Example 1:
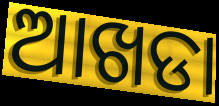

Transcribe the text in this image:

ଆଖଡା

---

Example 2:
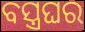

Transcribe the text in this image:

ବସ୍ତ୍ରଘର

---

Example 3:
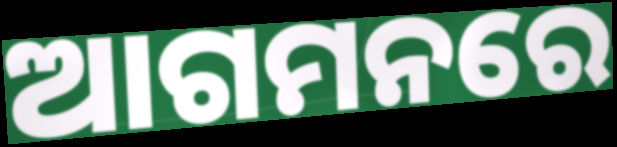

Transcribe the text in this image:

ଆଗମନରେ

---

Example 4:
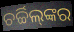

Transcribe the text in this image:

ଚର୍ଚ୍ଚିଲ୍‌ଙ୍କର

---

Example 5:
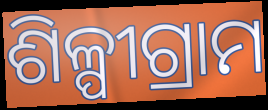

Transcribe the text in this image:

ଶିଳ୍ପୀଗ୍ରାମ